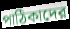
পাঠিকাদের